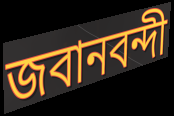
জবানবন্দী